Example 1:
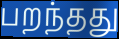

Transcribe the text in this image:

பறந்தது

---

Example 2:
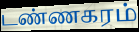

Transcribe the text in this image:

டண்ணகரம்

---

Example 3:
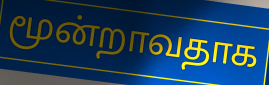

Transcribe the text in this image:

மூன்றாவதாக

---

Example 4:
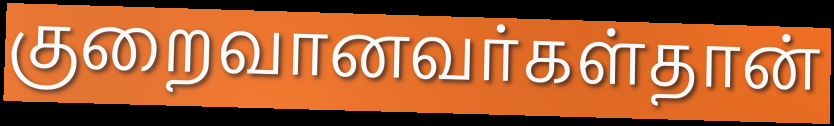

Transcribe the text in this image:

குறைவானவர்கள்தான்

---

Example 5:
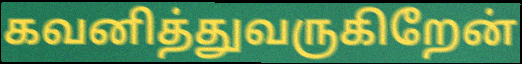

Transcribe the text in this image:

கவனித்துவருகிறேன்